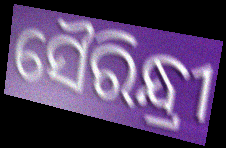
ସୈରିନ୍ଧ୍ରୀ